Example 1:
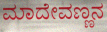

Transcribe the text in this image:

ಮಾದೇವಣ್ಣನ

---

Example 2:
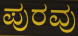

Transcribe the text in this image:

ಪುರವು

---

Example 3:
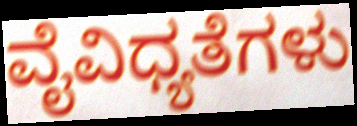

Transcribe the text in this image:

ವೈವಿಧ್ಯತೆಗಳು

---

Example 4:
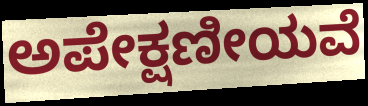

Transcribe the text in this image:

ಅಪೇಕ್ಷಣೀಯವೆ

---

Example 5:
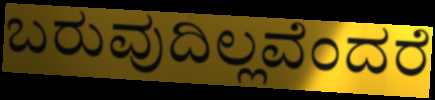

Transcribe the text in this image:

ಬರುವುದಿಲ್ಲವೆಂದರೆ